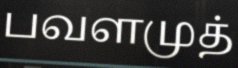
பவளமுத்